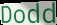
Dodd